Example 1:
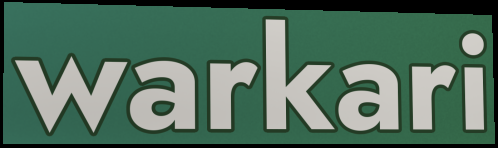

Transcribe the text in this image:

warkari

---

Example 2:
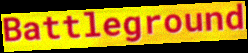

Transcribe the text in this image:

Battleground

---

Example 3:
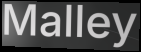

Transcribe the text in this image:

Malley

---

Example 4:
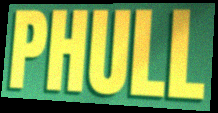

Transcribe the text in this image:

PHULL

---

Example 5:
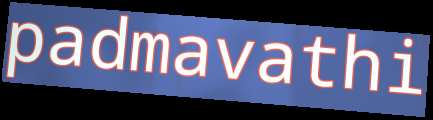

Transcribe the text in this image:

padmavathi